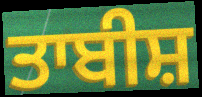
ਤਾਬੀਸ਼